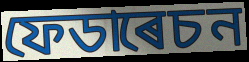
ফেডাৰেচন